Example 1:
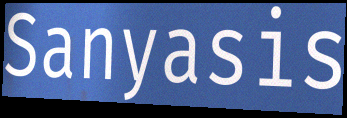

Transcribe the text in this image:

Sanyasis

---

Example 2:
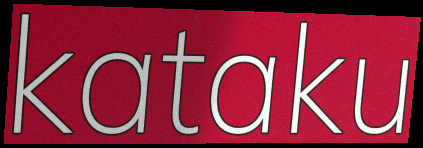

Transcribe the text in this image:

kataku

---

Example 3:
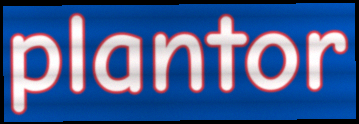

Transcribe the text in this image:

plantor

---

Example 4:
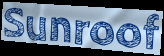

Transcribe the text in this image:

Sunroof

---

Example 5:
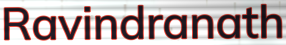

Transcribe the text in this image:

Ravindranath